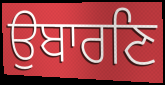
ਉਬਾਰਣਿ